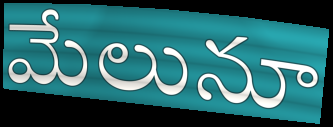
మేలునూ